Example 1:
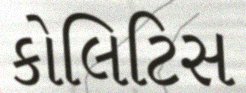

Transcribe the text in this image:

કોલિટિસ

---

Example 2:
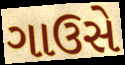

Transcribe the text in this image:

ગાઉસે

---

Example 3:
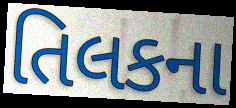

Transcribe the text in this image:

તિલકના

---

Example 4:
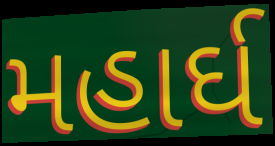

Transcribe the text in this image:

મહાર્ઘ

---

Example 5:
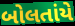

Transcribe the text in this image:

બોલતાંયે